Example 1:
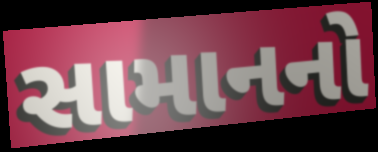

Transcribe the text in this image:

સામાનનો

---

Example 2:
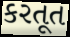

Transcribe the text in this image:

કરતૂત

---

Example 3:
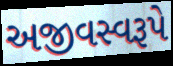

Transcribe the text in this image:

અજીવસ્વરૂપે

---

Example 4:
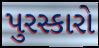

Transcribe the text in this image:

પુરસ્કારો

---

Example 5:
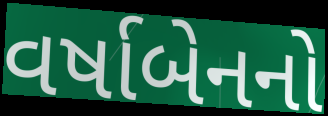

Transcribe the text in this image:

વર્ષાબેનનો